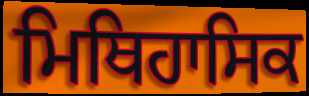
ਮਿਥਿਹਾਸਿਕ